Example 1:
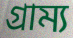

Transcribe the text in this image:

গ্ৰাম্য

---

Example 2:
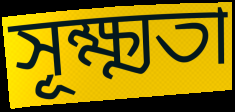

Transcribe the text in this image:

সূক্ষ্মতা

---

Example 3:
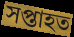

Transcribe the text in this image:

সপ্তাহত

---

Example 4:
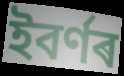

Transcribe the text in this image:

ইবৰ্ণৰ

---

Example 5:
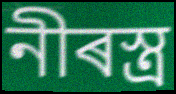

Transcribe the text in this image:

নীৰস্ত্ৰ